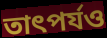
তাৎপর্যও